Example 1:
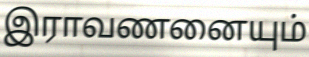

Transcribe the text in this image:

இராவணனையும்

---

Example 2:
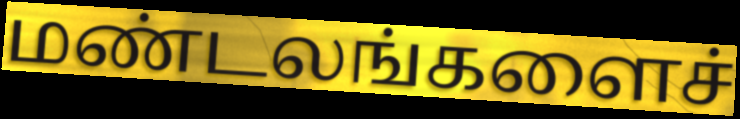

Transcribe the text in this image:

மண்டலங்களைச்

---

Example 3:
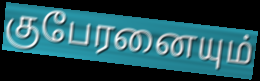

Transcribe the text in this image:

குபேரனையும்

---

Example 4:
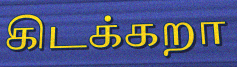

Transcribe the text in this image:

கிடக்கறா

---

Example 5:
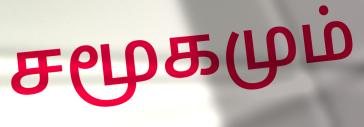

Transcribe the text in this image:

சமூகமும்